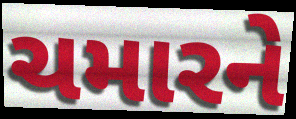
ચમારને